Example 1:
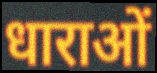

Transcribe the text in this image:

धाराओं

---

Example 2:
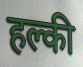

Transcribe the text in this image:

हल्की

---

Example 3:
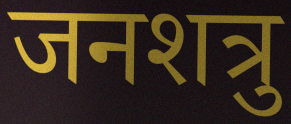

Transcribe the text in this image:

जनशत्रु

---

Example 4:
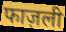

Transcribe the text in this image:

फाज़ली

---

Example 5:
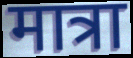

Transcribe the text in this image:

मात्रा